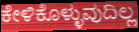
ಕೇಳಿಕೊಳ್ಳುವುದಿಲ್ಲ